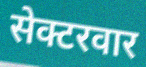
सेक्टरवार